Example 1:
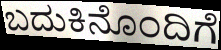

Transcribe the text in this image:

ಬದುಕಿನೊಂದಿಗೆ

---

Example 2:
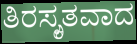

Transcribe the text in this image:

ತಿರಸ್ಕೃತವಾದ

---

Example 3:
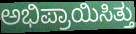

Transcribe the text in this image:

ಅಭಿಪ್ರಾಯಿಸಿತ್ತು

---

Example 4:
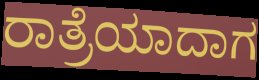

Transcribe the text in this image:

ರಾತ್ರೆಯಾದಾಗ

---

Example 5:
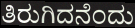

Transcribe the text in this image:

ತಿರುಗಿದನೆಂದು